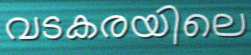
വടകരയിലെ